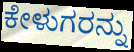
ಕೇಳುಗರನ್ನು